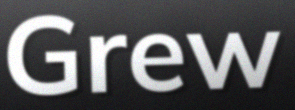
Grew